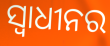
ସ୍ୱାଧୀନର